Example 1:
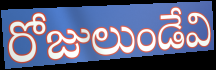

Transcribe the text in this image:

రోజులుండేవి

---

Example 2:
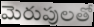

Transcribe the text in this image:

మెరుపులతో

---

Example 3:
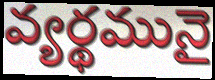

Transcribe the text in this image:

వ్యర్థమునై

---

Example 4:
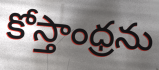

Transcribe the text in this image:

కోస్తాంధ్రను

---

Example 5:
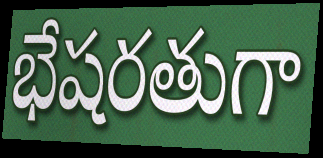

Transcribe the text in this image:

భేషరతుగా